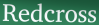
Redcross